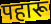
पहारू